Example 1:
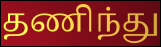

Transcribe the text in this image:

தணிந்து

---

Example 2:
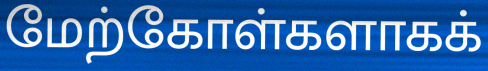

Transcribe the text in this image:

மேற்கோள்களாகக்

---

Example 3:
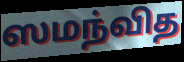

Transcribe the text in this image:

ஸமந்வித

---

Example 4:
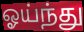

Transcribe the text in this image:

ஓய்ந்து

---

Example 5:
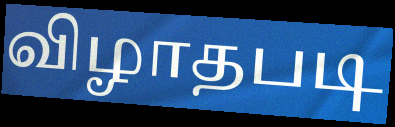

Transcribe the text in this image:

விழாதபடி